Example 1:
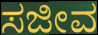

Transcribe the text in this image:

ಸಜೀವ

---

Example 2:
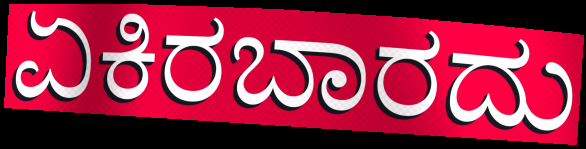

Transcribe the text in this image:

ಏಕಿರಬಾರದು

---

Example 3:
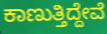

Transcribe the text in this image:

ಕಾಣುತ್ತಿದ್ದೇವೆ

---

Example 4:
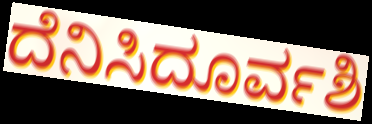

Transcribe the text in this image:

ದೆನಿಸಿದೂರ್ವಶಿ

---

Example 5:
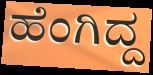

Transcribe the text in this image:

ಹೆಂಗಿದ್ದ